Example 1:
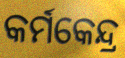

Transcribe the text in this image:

କର୍ମକେନ୍ଦ୍ର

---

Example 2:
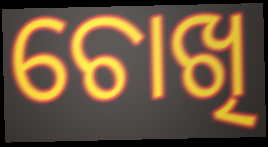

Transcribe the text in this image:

ଚୋଖି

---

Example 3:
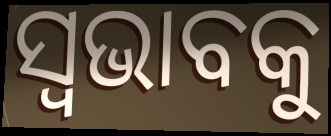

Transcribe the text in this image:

ସ୍ୱଭାବକୁ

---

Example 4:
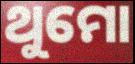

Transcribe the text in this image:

ଥୁମୋ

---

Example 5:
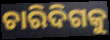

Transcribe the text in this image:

ଚାରିଦିଗକୁ